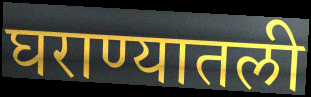
घराण्यातली